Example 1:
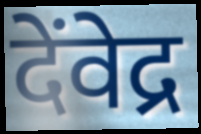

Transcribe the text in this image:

देंवेद्र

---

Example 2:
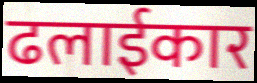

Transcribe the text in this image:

ढलाईकार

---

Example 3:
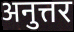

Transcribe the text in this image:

अनुत्तर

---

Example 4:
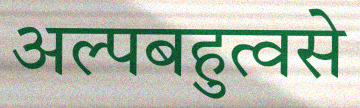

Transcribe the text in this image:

अल्पबहुत्वसे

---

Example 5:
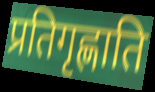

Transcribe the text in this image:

प्रतिगृह्णाति